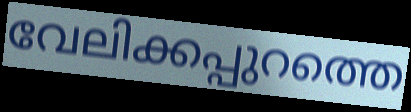
വേലിക്കപ്പുറത്തെ